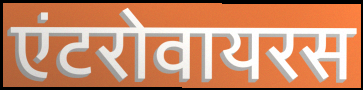
एंटरोवायरस